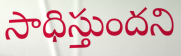
సాధిస్తుందని